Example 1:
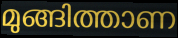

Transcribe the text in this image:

മുങ്ങിത്താണ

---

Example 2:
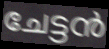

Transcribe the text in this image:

ചേട്ടൻ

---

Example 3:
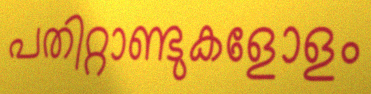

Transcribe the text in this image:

പതിറ്റാണ്ടുകളോളം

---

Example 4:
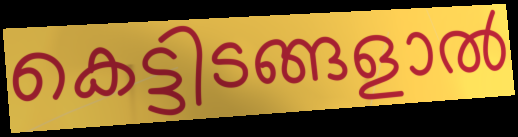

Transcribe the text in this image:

കെട്ടിടങ്ങളാൽ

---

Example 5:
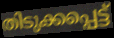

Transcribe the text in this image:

തിടുക്കപ്പെട്ട്